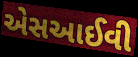
એસઆઈવી